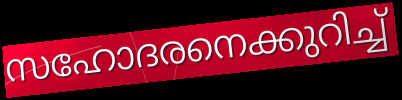
സഹോദരനെക്കുറിച്ച്